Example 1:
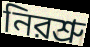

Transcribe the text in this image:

নিরশ্রু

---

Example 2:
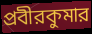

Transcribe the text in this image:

প্রবীরকুমার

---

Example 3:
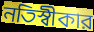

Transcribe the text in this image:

নতিস্বীকার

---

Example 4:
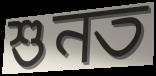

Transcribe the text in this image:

শুনত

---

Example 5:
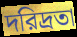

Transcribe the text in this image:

দরিদ্রতা